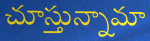
చూస్తున్నామా